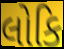
લોકિ